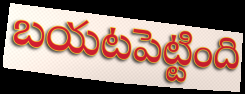
బయటపెట్టింది